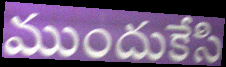
ముందుకేసి